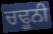
ਚਢੂਨੀ